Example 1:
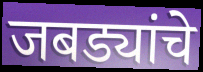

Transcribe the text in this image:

जबड्यांचे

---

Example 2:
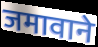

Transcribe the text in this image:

जमावाने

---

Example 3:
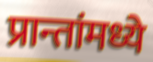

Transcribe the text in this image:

प्रान्तांमध्ये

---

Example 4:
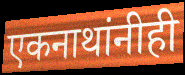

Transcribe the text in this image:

एकनाथांनीही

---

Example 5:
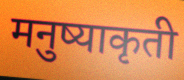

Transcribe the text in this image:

मनुष्याकृती